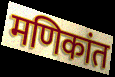
मणिकांत